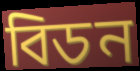
বিডন